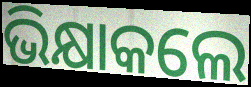
ଭିକ୍ଷାକଲେ